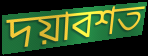
দয়াবশত